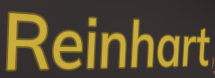
Reinhart